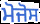
ਮੋਜੋਸ